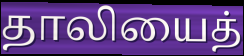
தாலியைத்